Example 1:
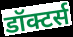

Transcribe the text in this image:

डॉक्टर्स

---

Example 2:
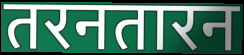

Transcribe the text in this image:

तरनतारन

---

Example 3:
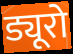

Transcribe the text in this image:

ड्यूरो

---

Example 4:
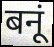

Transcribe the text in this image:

बनूं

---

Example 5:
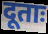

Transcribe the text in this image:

दूताः